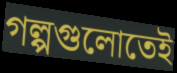
গল্পগুলোতেই